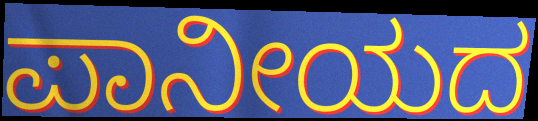
ಪಾನೀಯದ